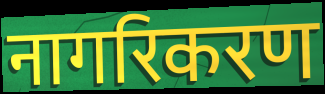
नागरिकरण